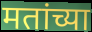
मतांच्या